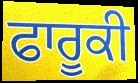
ਫਾਰੂਕੀ